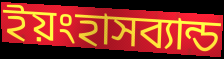
ইয়ংহাসব্যান্ড